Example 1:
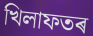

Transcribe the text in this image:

খিলাফতৰ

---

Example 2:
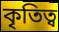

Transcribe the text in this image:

কৃতিত্ব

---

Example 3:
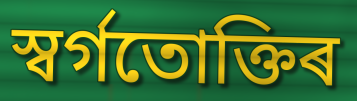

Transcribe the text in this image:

স্বৰ্গতোক্তিৰ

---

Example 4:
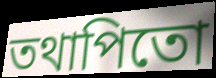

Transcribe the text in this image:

তথাপিতো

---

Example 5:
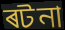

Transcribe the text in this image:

ৰটনা